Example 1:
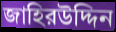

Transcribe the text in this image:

জাহিরউদ্দিন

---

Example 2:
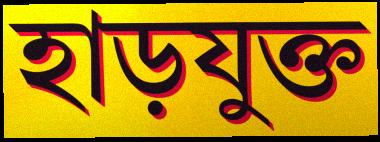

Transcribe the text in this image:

হাড়যুক্ত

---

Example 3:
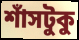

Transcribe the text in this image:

শাঁসটুকু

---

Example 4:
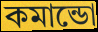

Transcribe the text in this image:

কমান্ডো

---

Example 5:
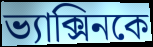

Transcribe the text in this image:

ভ্যাক্সিনকে